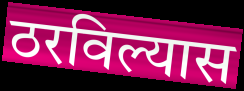
ठरविल्यास